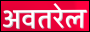
अवतरेल